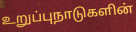
உறுப்புநாடுகளின்